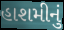
હાશમીનું